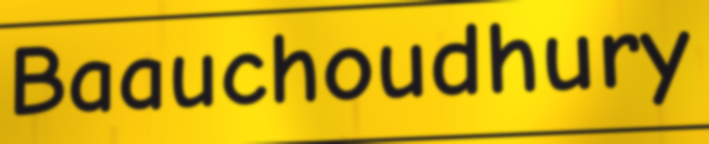
Baauchoudhury